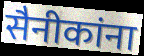
सैनीकांना